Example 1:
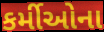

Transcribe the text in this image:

કર્મીઓના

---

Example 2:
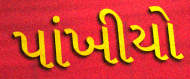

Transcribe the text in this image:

પાંખીયો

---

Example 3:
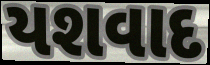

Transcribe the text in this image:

યશવાદ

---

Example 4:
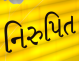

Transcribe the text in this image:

નિરુપિત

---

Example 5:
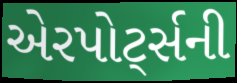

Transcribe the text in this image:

એરપોર્ટ્સની